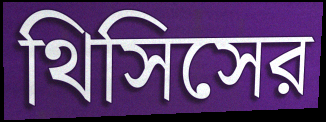
থিসিসের